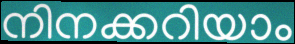
നിനക്കറിയാം